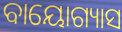
ବାୟୋଗ୍ୟାସ